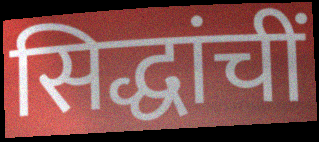
सिद्धांचीं